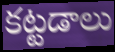
కట్టడాలు